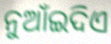
ନୁଆଁଇଦିଏ